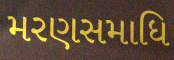
મરણસમાધિ